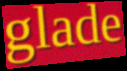
glade